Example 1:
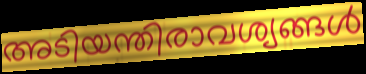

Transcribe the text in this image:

അടിയന്തിരാവശ്യങ്ങൾ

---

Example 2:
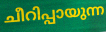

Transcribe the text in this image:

ചീറിപ്പായുന്ന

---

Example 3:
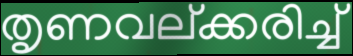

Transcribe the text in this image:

തൃണവല്ക്കരിച്ച്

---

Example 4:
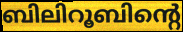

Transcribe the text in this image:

ബിലിറൂബിന്റെ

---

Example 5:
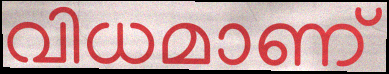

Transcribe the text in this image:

വിധമാണ്